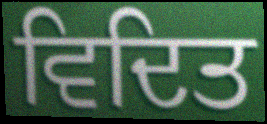
ਵਿਦਿਤ